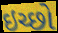
ઇચ્છો